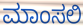
ಮಾಂಸಲಿ